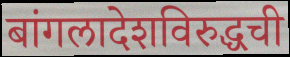
बांगलादेशविरुद्धची